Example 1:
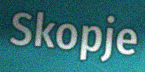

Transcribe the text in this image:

Skopje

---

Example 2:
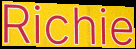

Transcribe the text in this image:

Richie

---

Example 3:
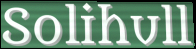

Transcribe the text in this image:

Solihull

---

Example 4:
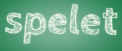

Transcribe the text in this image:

spelet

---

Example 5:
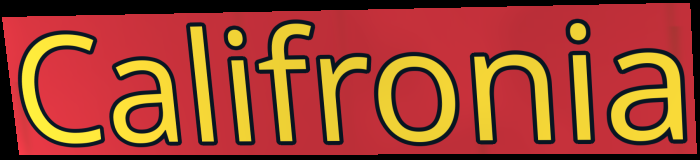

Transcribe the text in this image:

Califronia